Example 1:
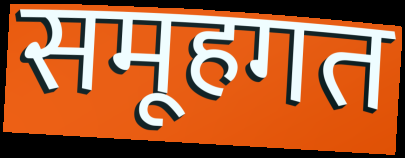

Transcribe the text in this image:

समूहगत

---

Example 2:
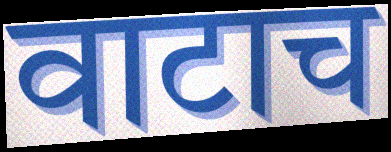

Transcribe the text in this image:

वाटाच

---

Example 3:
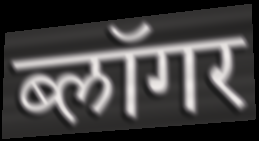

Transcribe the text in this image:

ब्लॉगर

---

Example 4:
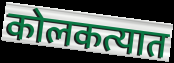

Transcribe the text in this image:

कोलकत्यात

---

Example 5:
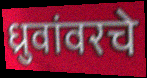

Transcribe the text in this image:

ध्रुवांवरचे